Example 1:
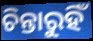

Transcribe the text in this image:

ଚିନ୍ତାରୁହିଁ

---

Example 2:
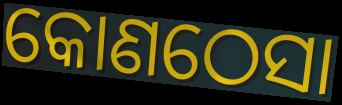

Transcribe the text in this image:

କୋଣଠେସା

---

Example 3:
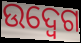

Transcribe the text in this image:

ଉଦ୍ବେଗ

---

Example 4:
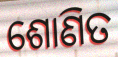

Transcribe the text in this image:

ଶୋଣିତ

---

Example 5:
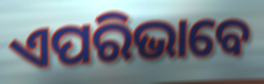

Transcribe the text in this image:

ଏପରିଭାବେ